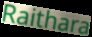
Raithara